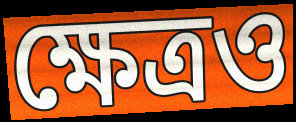
ক্ষেত্রও